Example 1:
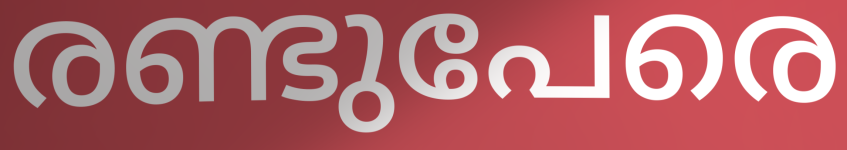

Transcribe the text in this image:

രണ്ടുപേരെ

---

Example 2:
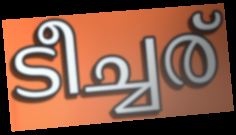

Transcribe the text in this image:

ടീച്ചര്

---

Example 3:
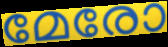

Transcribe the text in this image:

മേരോ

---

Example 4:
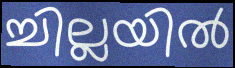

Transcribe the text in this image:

ച്ചില്ലയിൽ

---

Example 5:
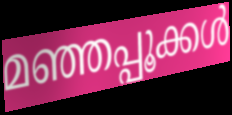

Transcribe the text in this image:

മഞ്ഞപ്പൂക്കൾ